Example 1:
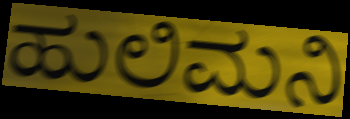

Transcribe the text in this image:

ಹುಲಿಮನಿ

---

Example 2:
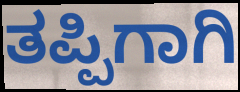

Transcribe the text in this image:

ತಪ್ಪಿಗಾಗಿ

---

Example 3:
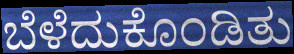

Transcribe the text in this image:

ಬೆಳೆದುಕೊಂಡಿತು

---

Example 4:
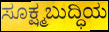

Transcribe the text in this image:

ಸೂಕ್ಷ್ಮಬುದ್ಧಿಯ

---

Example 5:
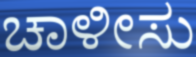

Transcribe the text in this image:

ಚಾಳೀಸು